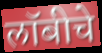
लॉबीचे